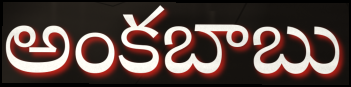
అంకబాబు